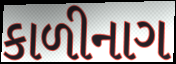
કાળીનાગ